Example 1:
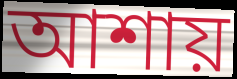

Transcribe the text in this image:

আশায়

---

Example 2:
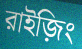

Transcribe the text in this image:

রাইজ়িং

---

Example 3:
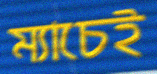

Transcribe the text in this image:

ম্যাচেই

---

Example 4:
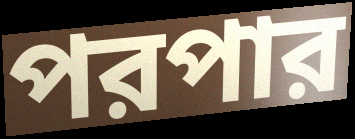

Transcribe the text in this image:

পরপার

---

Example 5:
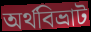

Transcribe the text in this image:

অর্থবিভ্রাট